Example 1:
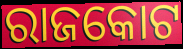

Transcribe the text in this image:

ରାଜକୋଟ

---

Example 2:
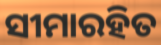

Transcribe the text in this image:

ସୀମାରହିତ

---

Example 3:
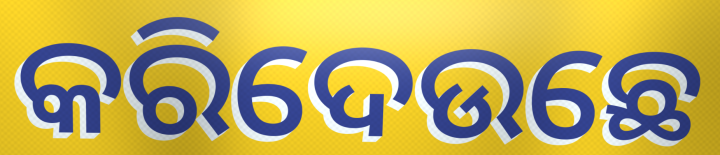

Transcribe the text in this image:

କରିଦେଉଛେ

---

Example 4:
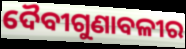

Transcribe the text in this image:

ଦୈବୀଗୁଣାବଳୀର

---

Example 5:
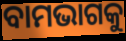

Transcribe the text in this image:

ବାମଭାଗକୁ